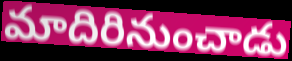
మాదిరినుంచాడు